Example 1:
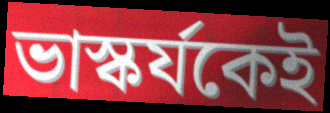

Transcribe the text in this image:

ভাস্কর্যকেই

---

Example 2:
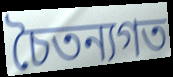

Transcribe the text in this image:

চৈতন্যগত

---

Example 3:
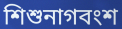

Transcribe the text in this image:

শিশুনাগবংশ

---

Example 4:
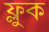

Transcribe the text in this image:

ফ্লুক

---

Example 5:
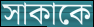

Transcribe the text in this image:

সাকাকে